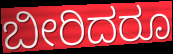
ಬೀರಿದರೂ